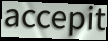
accepit